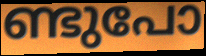
ണ്ടുപോ